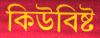
কিউবিষ্ট